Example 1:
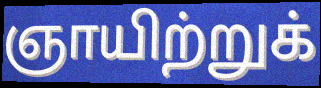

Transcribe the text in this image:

ஞாயிற்றுக்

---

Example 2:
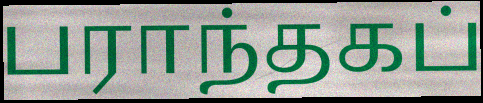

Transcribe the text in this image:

பராந்தகப்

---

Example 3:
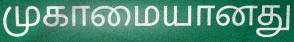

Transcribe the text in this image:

முகாமையானது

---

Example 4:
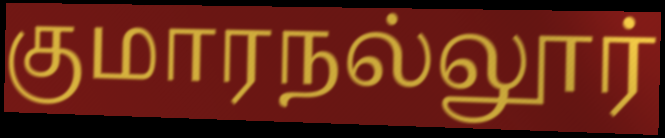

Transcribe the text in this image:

குமாரநல்லூர்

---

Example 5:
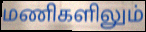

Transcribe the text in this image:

மணிகளிலும்